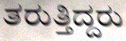
ತರುತ್ತಿದ್ದರು